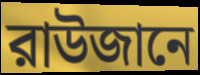
রাউজানে